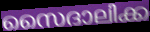
സൈദാലിക്ക